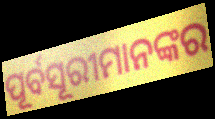
ପୂର୍ବସୂରୀମାନଙ୍କର